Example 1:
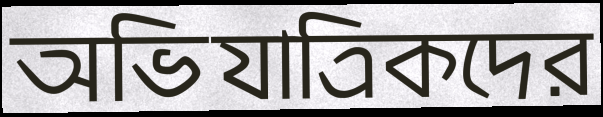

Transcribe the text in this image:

অভিযাত্রিকদের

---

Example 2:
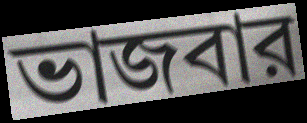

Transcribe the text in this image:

ভাজবার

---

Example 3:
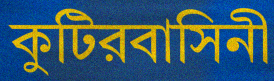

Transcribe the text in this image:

কুটিরবাসিনী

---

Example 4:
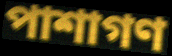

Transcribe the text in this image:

পাশাগণ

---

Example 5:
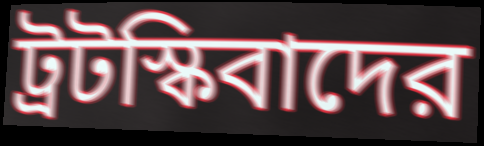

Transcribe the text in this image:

ট্রটস্কিবাদের